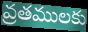
వ్రతములకు